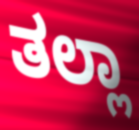
ತಲ್ಲಾ